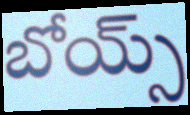
బోయ్స్